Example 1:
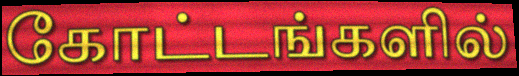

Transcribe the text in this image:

கோட்டங்களில்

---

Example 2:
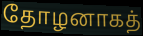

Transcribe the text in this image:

தோழனாகத்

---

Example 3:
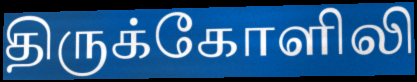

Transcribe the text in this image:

திருக்கோளிலி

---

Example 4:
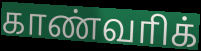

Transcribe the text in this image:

காண்வரிக்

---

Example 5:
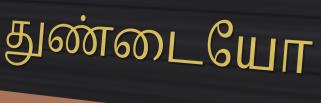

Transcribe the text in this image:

துண்டையோ